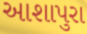
આશાપુરા